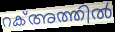
റക്അത്തിൽ